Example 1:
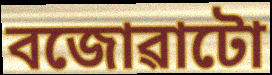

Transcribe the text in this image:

বজোৱাটো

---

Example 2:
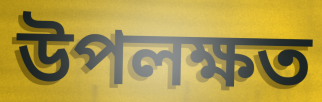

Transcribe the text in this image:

উপলক্ষত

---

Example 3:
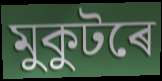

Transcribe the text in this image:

মুকুটৰে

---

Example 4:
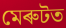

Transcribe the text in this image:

মেৰুটত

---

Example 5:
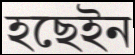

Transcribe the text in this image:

হছেইন